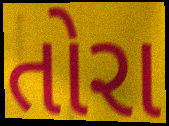
તોરા